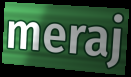
meraj